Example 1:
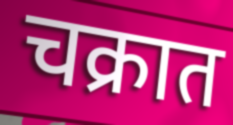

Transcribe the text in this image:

चक्रात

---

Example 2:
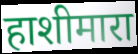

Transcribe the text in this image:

हाशीमारा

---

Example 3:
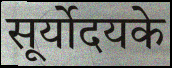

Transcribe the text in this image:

सूर्योदयके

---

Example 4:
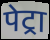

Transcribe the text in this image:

पेट्रा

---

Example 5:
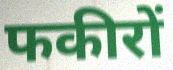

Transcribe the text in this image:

फकीरों